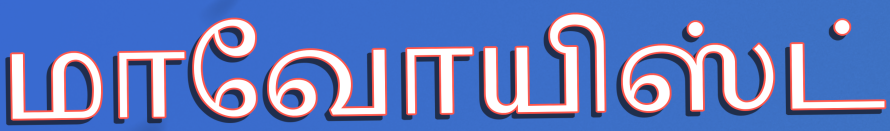
மாவோயிஸ்ட்